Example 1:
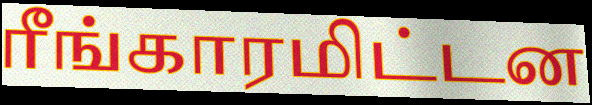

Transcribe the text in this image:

ரீங்காரமிட்டன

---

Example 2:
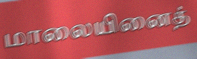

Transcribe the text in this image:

மாலையினைத்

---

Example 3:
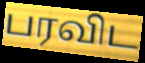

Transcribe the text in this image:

பரவிட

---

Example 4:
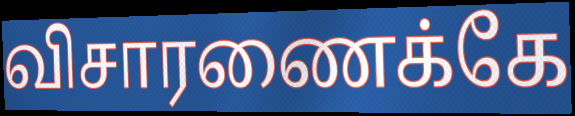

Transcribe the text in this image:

விசாரணைக்கே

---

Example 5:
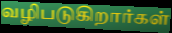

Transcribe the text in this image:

வழிபடுகிறார்கள்